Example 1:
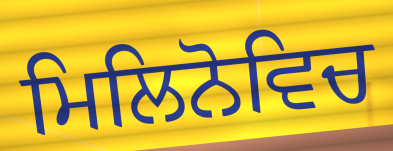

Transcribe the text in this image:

ਮਿਲਿਨੋਵਿਚ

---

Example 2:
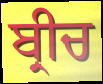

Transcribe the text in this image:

ਬ੍ਰੀਚ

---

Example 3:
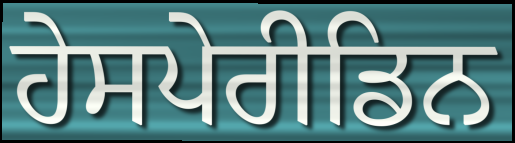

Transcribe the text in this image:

ਹੇਸਪੇਰੀਡਿਨ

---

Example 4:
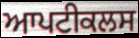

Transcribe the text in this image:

ਆਪਟੀਕਲਸ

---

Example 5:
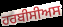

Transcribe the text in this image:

ਹਰਬੀਸੀਅਸ